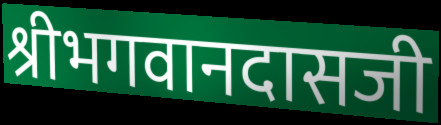
श्रीभगवानदासजी